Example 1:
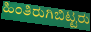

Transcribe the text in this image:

ಹಿಂತಿರುಗಿಬಿಟ್ಟರು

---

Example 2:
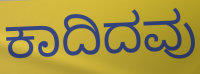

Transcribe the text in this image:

ಕಾದಿದವು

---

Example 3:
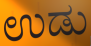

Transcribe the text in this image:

ಉಡು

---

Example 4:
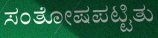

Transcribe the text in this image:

ಸಂತೋಷಪಟ್ಟಿತು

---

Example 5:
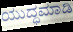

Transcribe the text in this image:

ಯುದ್ಧಮಾಡಿ